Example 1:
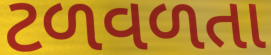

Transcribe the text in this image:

ટળવળતા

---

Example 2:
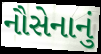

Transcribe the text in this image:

નૌસેનાનું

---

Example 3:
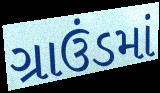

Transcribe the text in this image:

ગ્રાઉંડમાં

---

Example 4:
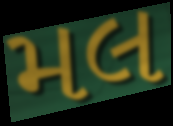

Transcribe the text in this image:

મલ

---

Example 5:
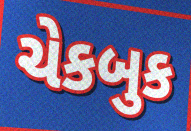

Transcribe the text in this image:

ચેકબુક